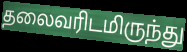
தலைவரிடமிருந்து